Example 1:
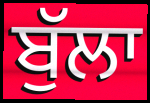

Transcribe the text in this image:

ਬੁੱਲਾ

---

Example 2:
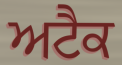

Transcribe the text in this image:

ਅਟੈਕ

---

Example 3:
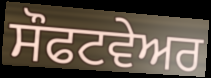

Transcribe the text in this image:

ਸੌਫਟਵੇਅਰ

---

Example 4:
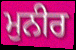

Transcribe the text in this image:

ਮੁਨੀਰ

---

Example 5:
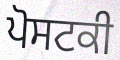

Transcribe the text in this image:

ਪੋਸਟਕੀ